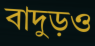
বাদুড়ও